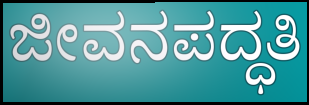
ಜೀವನಪದ್ಧತಿ